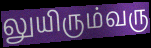
லுயிரும்வரு